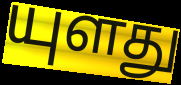
யுளது